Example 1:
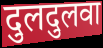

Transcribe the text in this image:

दुलदुलवा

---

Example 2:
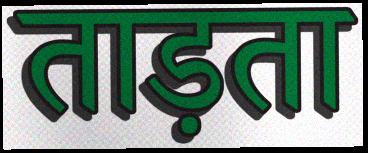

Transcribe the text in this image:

ताड़ता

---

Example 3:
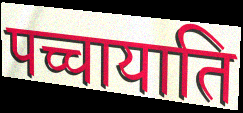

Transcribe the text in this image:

पच्चायाति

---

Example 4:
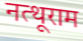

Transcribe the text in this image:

नत्थूराम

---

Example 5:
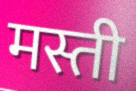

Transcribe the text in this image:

मस्ती